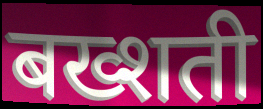
बख्शती